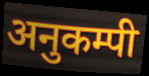
अनुकम्पी